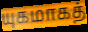
யுகமாகத்